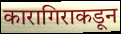
कारागिराकडून